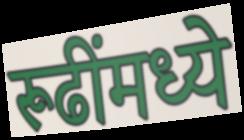
रूढींमध्ये